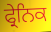
ਫ੍ਰੇਨਿਕ